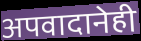
अपवादानेही